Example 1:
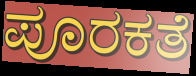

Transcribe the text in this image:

ಪೂರಕತೆ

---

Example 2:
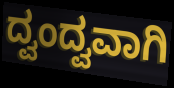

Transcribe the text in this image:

ದ್ವಂದ್ವವಾಗಿ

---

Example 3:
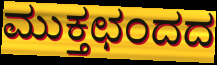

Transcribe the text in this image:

ಮುಕ್ತಛಂದದ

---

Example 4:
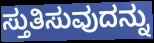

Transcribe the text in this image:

ಸ್ತುತಿಸುವುದನ್ನು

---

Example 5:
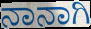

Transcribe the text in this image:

ನಾನಾಗಿ